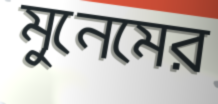
মুনেমের